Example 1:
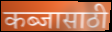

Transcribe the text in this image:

कब्जासाठी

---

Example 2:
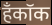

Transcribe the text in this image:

हँकॉक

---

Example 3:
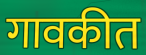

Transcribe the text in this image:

गावकीत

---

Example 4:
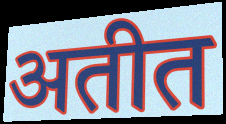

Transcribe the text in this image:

अतीत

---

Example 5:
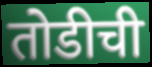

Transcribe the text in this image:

तोडीची